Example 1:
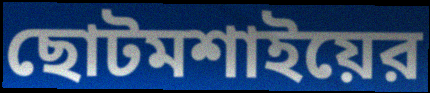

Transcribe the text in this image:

ছোটমশাইয়ের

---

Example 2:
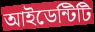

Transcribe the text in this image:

আইডেন্টিটি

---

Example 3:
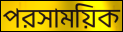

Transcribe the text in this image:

পরসাময়িক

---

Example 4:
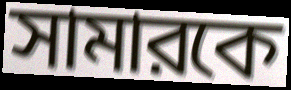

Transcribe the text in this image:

সামারকে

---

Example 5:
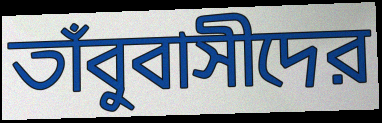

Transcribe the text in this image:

তাঁবুবাসীদের